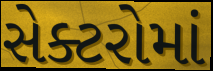
સેક્ટરોમાં